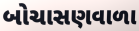
બોચાસણવાળા